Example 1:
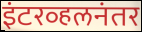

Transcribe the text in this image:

इंटरव्हलनंतर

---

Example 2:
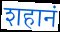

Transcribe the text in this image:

शहानं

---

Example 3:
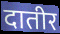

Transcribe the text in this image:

दातीर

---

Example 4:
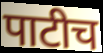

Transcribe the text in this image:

पाटीच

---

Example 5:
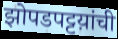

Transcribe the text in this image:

झोपडपट्टय़ांची